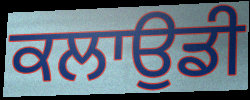
ਕਲਾਉਡੀ